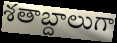
శతాబ్దాలుగా